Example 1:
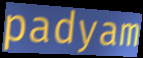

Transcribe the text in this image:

padyam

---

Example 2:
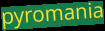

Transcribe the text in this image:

pyromania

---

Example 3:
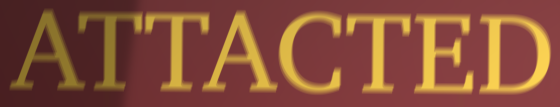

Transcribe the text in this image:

ATTACTED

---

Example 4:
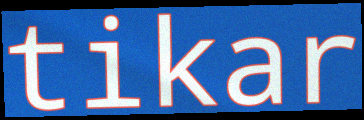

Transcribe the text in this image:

tikar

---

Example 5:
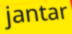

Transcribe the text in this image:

jantar